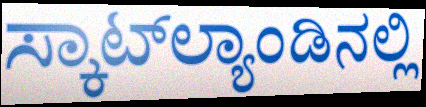
ಸ್ಕಾಟ್‌ಲ್ಯಾಂಡಿನಲ್ಲಿ